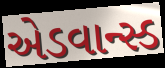
એડવાન્સ્ડ